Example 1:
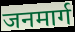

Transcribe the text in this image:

जनमार्ग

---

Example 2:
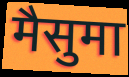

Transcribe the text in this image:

मैसुमा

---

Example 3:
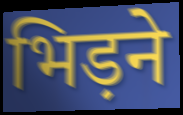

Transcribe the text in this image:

भिड़ने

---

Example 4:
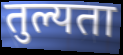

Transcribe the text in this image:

तुल्यता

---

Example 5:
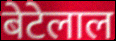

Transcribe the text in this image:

बेटेलाल